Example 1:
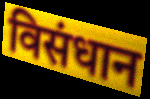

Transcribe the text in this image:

विसंधान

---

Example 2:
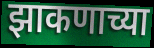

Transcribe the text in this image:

झाकणाच्या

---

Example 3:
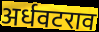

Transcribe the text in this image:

अर्धवटराव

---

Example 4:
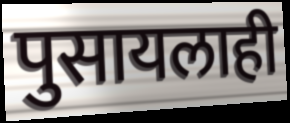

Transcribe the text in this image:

पुसायलाही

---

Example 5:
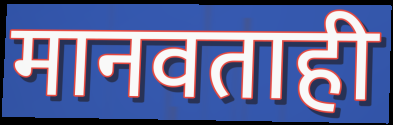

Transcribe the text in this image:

मानवताही